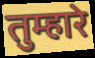
तुम्हारे